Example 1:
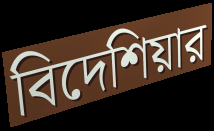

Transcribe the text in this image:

বিদেশিয়ার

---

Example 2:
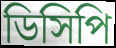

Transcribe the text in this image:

ডিসিপি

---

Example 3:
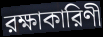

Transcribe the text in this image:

রক্ষাকারিণী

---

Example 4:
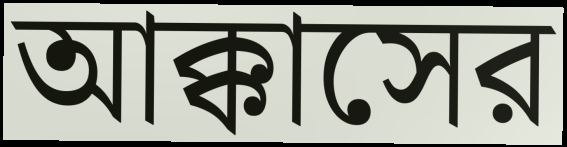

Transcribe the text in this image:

আক্কাসের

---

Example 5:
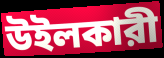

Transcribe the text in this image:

উইলকারী